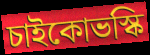
চাইকোভস্কি